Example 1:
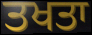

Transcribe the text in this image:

ਤਖਤਾ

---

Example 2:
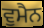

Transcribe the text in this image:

ਵੁਮੈਨ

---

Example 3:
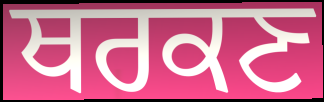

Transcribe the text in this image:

ਥਰਕਣ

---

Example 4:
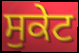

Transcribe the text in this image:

ਸੁਕੇਟ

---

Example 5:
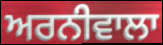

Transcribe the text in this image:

ਅਰਨੀਵਾਲਾ